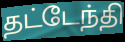
தட்டேந்தி